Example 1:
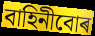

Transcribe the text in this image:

বাহিনীবোৰ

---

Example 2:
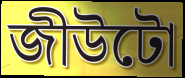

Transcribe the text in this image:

জীউটো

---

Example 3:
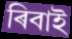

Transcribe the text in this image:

ৰিবাই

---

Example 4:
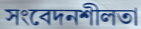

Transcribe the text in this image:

সংবেদনশীলতা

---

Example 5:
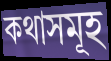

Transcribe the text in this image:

কথাসমূহ